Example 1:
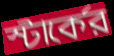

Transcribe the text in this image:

স্টার্কের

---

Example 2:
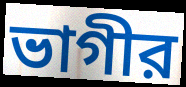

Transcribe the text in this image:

ভাগীর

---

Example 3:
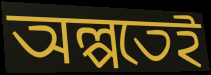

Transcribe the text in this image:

অল্পতেই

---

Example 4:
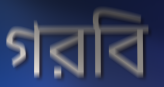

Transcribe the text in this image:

গরবি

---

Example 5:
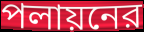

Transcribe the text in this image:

পলায়নের